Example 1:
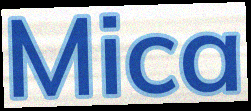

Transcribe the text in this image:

Mica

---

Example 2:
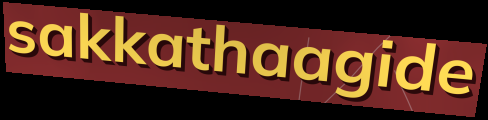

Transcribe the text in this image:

sakkathaagide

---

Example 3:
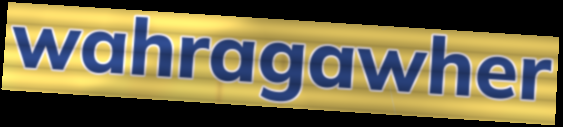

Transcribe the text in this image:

wahragawher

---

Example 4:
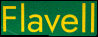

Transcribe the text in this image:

Flavell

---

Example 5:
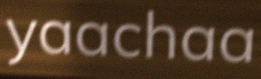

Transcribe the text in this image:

yaachaa